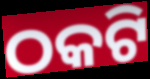
ଠକଟି